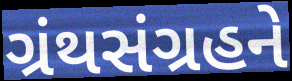
ગ્રંથસંગ્રહને